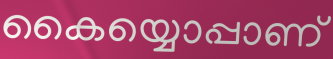
കൈയ്യൊപ്പാണ്